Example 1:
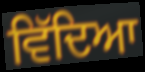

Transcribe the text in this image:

ਵਿੱਦਿਆ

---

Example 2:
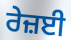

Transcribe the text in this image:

ਰੇਜ਼ਈ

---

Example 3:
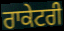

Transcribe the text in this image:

ਰਾਕੇਟਰੀ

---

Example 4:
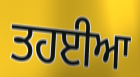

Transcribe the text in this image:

ਤਹਈਆ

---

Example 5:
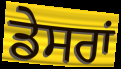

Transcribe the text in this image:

ਡੇਸਰਾਂ